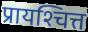
प्रायश्चित्त